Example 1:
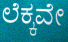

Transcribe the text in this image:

ಲೆಕ್ಕವೇ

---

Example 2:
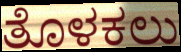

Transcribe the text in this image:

ತೊಳಕಲು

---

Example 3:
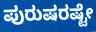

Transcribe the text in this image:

ಪುರುಷರಷ್ಟೇ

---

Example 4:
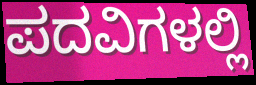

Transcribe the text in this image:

ಪದವಿಗಳಲ್ಲಿ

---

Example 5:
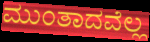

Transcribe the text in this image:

ಮುಂತಾದವೆಲ್ಲ